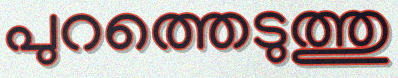
പുറത്തെടുത്തു